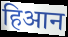
हिआन